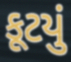
કૂટયું